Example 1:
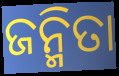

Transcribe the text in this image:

ଜନ୍ମିତା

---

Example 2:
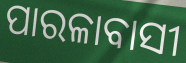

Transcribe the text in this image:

ପାରଳାବାସୀ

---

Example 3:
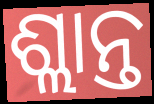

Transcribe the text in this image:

ଶ୍ଲାନ୍ତ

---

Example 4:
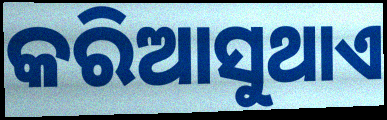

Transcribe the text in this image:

କରିଆସୁଥାଏ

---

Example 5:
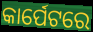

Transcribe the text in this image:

କାର୍ପେଟରେ